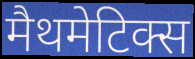
मैथमेटिक्स